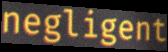
negligent